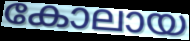
കോലായ